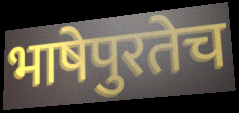
भाषेपुरतेच